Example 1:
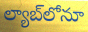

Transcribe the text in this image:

ల్యాబ్‌లోనూ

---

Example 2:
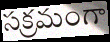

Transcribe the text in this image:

సక్రమంగా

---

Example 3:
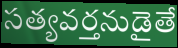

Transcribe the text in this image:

సత్యవర్తనుడైతే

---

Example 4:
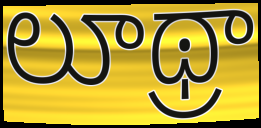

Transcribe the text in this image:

లూథ్రా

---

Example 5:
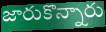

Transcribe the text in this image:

జారుకొన్నారు